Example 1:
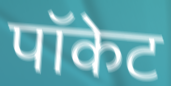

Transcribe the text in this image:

पॉकेट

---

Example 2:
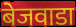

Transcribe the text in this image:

बेजवाडा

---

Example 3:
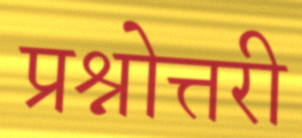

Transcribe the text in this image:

प्रश्नोत्तरी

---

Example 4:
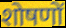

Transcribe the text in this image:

शोषणों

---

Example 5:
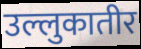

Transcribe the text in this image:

उल्लुकातीर